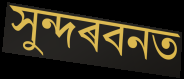
সুন্দৰবনত